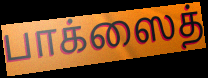
பாக்ஸைத்